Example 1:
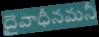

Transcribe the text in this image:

దైవాధీనమనీ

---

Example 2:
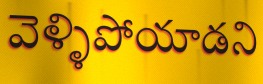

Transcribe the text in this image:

వెళ్ళిపోయాడని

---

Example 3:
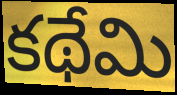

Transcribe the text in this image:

కథేమి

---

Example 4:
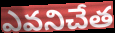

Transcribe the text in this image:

ఎవనిచేత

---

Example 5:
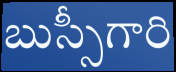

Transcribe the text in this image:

బుస్సీగారి